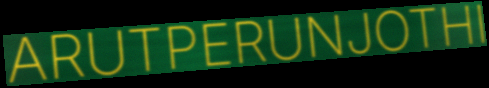
ARUTPERUNJOTHI